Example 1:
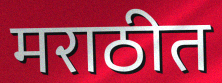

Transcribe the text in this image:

मराठीत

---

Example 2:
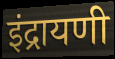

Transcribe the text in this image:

इंद्रायणी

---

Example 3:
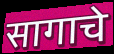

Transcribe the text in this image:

सागाचे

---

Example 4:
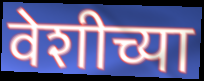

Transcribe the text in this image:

वेशीच्या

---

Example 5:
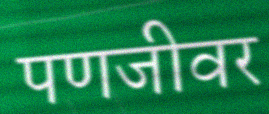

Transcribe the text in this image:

पणजीवर